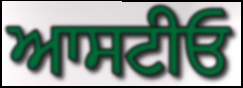
ਆਸਟੀਓ